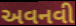
અવનવી